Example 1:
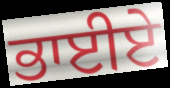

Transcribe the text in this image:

ਭਾਈਏ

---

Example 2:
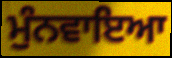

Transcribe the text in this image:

ਮੁੰਨਵਾਇਆ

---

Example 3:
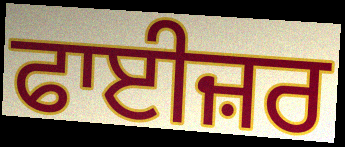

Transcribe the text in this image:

ਫਾਈਜ਼ਰ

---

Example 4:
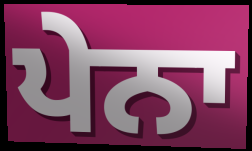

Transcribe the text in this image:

ਪੇਨਾ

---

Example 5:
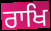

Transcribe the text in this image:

ਰਾਖਿ